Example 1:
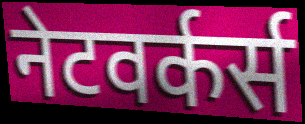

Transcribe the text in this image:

नेटवर्कर्स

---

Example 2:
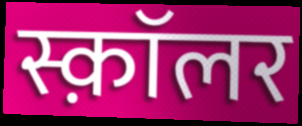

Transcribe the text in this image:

स्क़ॉलर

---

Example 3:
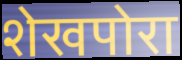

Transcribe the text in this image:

शेखपोरा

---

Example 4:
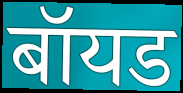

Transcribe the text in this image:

बॉयड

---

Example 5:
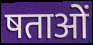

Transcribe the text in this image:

षताओं